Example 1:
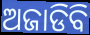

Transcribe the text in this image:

ଅଜାଡିବି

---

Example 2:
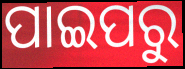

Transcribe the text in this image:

ପାଇପରୁ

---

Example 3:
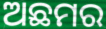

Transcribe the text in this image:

ଅଛମର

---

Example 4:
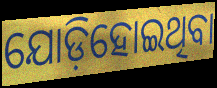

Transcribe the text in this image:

ଯୋଡ଼ିହୋଇଥିବା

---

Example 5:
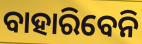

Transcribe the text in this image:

ବାହାରିବେନି